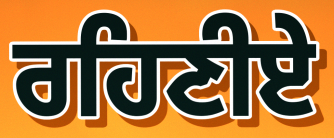
ਰਹਿਣੀਏ